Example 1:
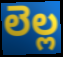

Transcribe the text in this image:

లెల్ల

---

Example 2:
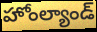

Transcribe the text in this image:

హోంల్యాండ్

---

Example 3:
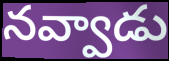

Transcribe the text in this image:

నవ్వాడు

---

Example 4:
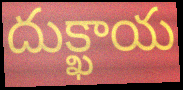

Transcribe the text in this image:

దుక్ఖాయ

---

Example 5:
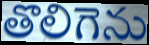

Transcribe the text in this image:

తొలిగెను